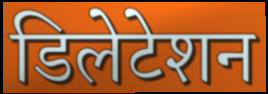
डिलेटेशन